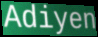
Adiyen